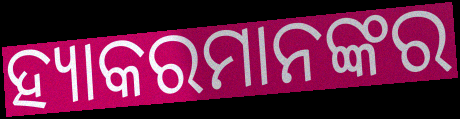
ହ୍ୟାକରମାନଙ୍କର